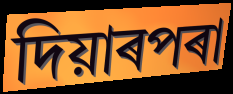
দিয়াৰপৰা